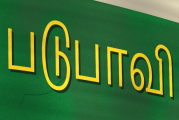
படுபாவி